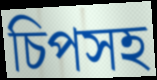
চিপসহ